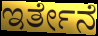
ಇರ್ತೇನೆ